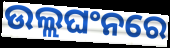
ଉଲ୍ଲଘଂନରେ